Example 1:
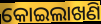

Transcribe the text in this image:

କୋଇଲାଖଣି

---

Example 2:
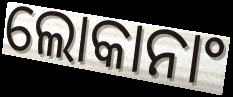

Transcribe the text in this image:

ଲୋକାନାଂ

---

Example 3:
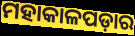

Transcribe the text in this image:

ମହାକାଳପଡ଼ାର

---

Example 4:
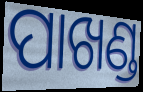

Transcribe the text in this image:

ପାଖଣ୍ଡ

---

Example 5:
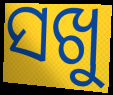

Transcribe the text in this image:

ସଖୁ